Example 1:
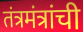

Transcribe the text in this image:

तंत्रमंत्रांची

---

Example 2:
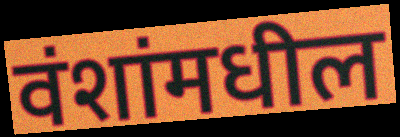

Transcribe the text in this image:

वंशांमधील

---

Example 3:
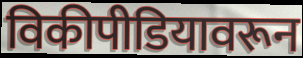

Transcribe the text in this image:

विकीपीडियावरून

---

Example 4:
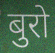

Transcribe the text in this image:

बुरो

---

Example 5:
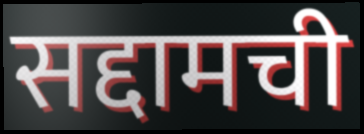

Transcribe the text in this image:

सद्दामची